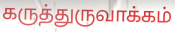
கருத்துருவாக்கம்